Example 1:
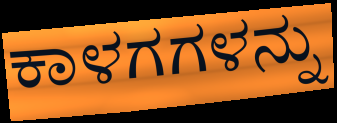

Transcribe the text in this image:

ಕಾಳಗಗಳನ್ನು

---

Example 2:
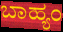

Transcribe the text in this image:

ಬಾಹ್ಯಂ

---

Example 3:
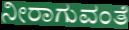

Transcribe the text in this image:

ನೀರಾಗುವಂತೆ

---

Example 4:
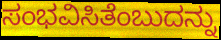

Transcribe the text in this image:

ಸಂಭವಿಸಿತೆಂಬುದನ್ನು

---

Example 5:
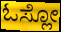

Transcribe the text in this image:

ಓಸ್ಲೋ